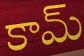
కామ్